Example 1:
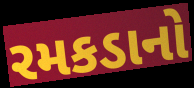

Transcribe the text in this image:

રમકડાનો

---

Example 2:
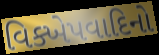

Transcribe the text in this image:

વિક્ખેપવાદિનો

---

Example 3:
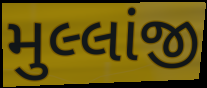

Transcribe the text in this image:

મુલ્લાંજી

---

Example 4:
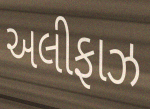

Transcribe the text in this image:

અલીફાઝ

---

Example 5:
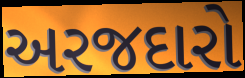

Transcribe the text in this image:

અરજદારો